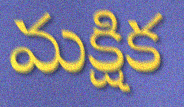
మక్షిక